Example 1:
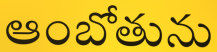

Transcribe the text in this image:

ఆంబోతును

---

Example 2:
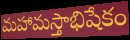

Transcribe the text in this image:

మహామస్తాభిషేకం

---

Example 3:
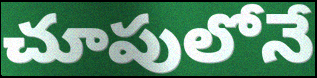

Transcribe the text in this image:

చూపులోనే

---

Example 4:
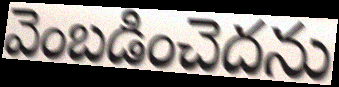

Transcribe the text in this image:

వెంబడించెదను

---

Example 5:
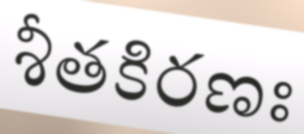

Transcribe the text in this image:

శీతకిరణః